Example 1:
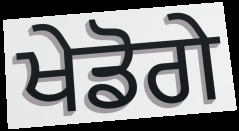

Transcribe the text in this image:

ਖੇਡੋਗੇ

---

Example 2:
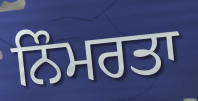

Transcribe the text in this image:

ਨਿੰਮਰਤਾ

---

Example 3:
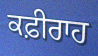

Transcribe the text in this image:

ਕਫ਼ੀਰਾਹ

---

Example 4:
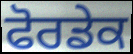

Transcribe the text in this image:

ਫੋਰਡੇਕ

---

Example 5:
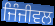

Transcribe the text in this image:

ਜਿੰਜੀਵਲ